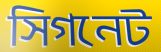
সিগনেট